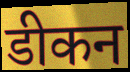
डीकन